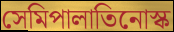
সেমিপালাতিনোস্ক